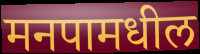
मनपामधील